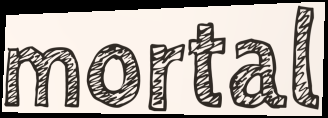
mortal